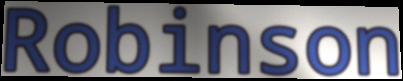
Robinson